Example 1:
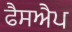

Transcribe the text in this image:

ਫੈਸਐਪ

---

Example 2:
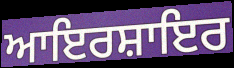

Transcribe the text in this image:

ਆਇਰਸ਼ਾਇਰ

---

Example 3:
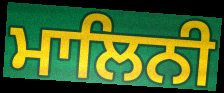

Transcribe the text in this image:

ਮਾਲਿਨੀ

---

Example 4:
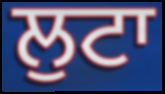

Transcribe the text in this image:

ਲੁਟਾ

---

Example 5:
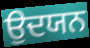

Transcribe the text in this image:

ਉਦਯਨ